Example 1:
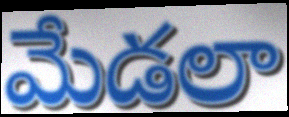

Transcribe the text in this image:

మేడలా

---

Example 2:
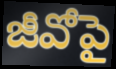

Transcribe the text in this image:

జీవోపై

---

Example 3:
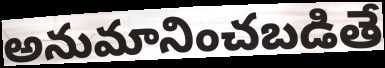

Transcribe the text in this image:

అనుమానించబడితే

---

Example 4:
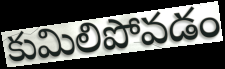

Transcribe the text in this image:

కుమిలిపోవడం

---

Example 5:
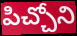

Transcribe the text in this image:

పిచ్చోని